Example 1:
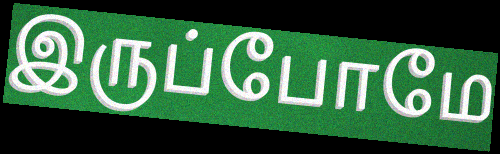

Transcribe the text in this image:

இருப்போமே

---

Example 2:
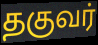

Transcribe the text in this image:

தகுவர்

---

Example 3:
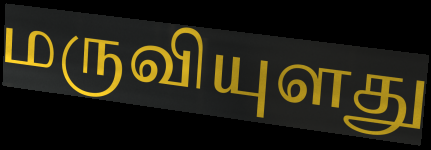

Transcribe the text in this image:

மருவியுளது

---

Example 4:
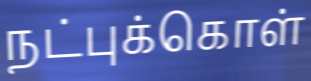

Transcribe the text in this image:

நட்புக்கொள்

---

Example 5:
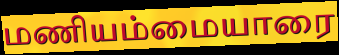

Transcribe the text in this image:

மணியம்மையாரை